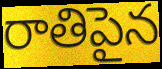
రాతిపైన